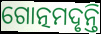
ଗୋତ୍ନମଦୃନ୍ତି